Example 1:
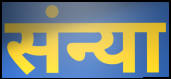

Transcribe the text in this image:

संन्या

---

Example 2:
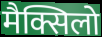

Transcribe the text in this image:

मैक्सिलो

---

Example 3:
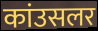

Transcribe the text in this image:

कांउसलर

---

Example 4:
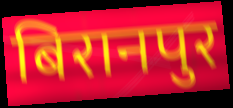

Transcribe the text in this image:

बिरानपुर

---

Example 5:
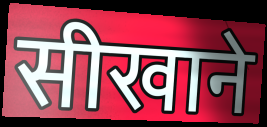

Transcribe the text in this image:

सीखाने